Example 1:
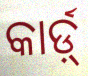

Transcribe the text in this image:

କାର୍ଡ଼୍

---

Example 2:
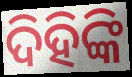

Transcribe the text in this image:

ଦିହିଙ୍କି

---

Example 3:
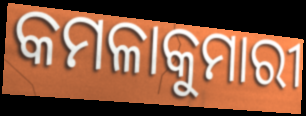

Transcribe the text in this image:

କମଳାକୁମାରୀ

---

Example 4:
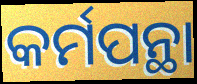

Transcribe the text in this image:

କର୍ମପନ୍ଥା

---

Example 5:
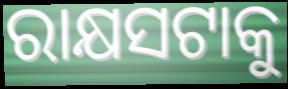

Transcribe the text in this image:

ରାକ୍ଷସଟାକୁ